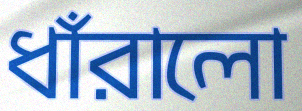
ধাঁরালো